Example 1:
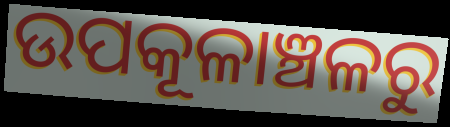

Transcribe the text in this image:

ଉପକୂଳାଞ୍ଚଳରୁ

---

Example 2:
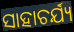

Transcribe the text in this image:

ସାହାଚର୍ଯ୍ୟ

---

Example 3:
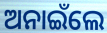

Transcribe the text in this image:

ଅନାଇଁଲେ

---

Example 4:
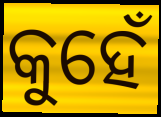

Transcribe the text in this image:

କୁହେଁ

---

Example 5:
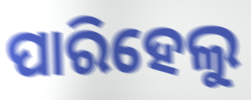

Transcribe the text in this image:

ପାରିହେଲୁ